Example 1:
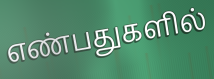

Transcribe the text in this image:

எண்பதுகளில்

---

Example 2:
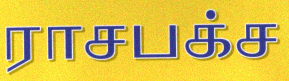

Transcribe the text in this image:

ராசபக்ச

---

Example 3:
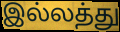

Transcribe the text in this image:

இல்லத்து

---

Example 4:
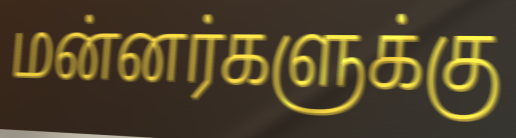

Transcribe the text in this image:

மன்னர்களுக்கு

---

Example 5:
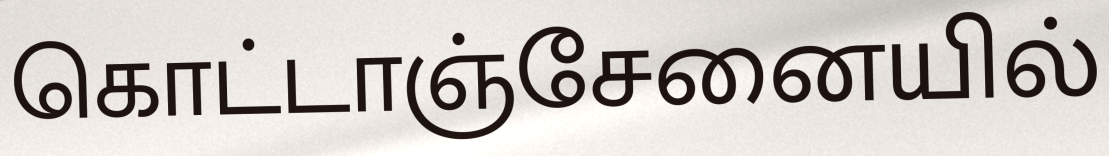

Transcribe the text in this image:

கொட்டாஞ்சேனையில்